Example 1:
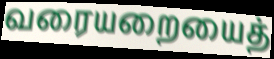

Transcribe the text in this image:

வரையறையைத்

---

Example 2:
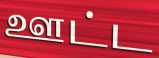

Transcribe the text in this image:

ஊட்ட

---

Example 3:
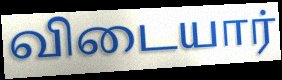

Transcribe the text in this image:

விடையார்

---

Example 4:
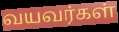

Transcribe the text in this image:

வயவர்கள்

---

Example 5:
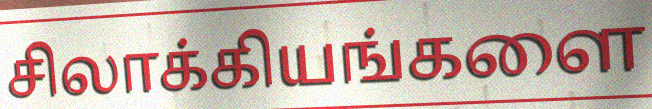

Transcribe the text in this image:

சிலாக்கியங்களை